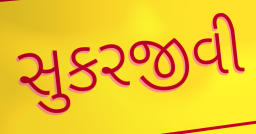
સુકરજીવી